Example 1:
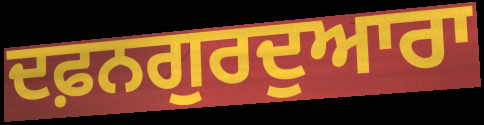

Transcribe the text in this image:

ਦਫ਼ਨਗੁਰਦੁਆਰਾ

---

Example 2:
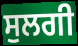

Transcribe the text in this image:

ਸੁਲਗੀ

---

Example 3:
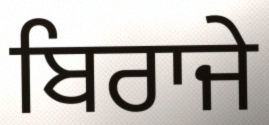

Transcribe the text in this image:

ਬਿਰਾਜੇ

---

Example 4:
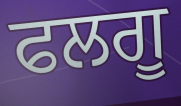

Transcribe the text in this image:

ਫਲਗੂ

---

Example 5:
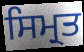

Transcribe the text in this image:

ਸਿਮ੍ਰਤ